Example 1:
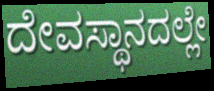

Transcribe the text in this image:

ದೇವಸ್ಥಾನದಲ್ಲೇ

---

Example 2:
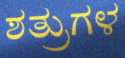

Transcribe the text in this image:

ಶತ್ರುಗಳ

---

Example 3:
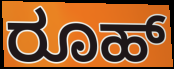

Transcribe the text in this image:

ರೂಹ್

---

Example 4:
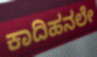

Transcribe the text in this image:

ಕಾದಿಹನಲೇ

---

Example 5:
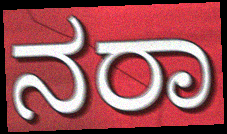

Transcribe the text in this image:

ನರಾ